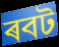
ৰবট